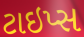
ટાઇપ્સ